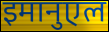
इमानुएल